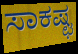
ಸಾಕಷ್ಟ